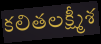
కలితలక్ష్మీశ